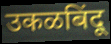
उकळबिंदू